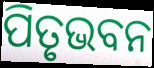
ପିତୃଭବନ